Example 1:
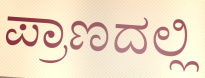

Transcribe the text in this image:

ಪ್ರಾಣದಲ್ಲಿ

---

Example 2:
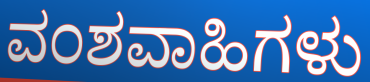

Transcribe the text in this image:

ವಂಶವಾಹಿಗಳು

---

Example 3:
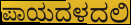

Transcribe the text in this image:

ಪಾಯದಳದಲಿ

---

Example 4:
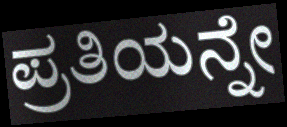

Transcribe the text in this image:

ಪ್ರತಿಯನ್ನೇ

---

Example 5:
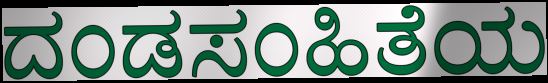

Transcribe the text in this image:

ದಂಡಸಂಹಿತೆಯ